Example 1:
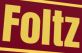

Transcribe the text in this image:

Foltz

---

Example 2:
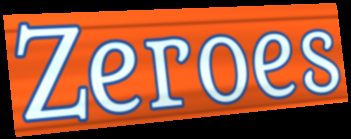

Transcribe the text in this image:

Zeroes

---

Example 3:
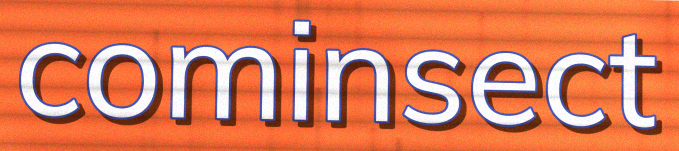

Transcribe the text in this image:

cominsect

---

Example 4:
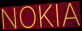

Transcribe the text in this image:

NOKIA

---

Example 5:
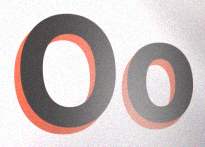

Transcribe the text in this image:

Oo